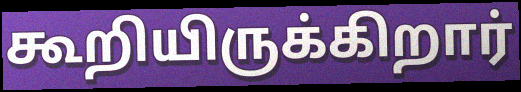
கூறியிருக்கிறார்